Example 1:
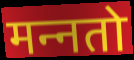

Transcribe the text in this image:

मन्नतो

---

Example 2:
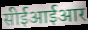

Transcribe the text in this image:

सीईआईआर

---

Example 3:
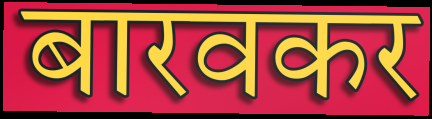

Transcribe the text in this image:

बारवकर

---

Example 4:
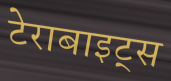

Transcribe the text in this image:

टेराबाइट्स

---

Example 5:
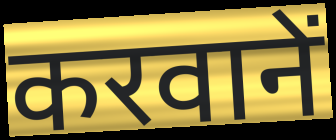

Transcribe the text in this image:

करवानें